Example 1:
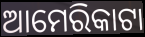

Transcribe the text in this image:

ଆମେରିକାଟା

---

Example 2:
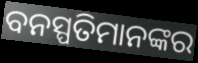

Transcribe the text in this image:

ବନସ୍ପତିମାନଙ୍କର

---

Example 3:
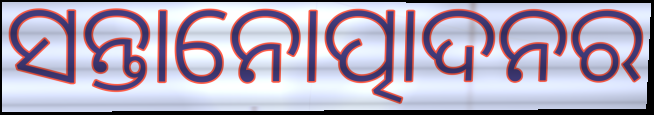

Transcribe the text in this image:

ସନ୍ତାନୋତ୍ପାଦନର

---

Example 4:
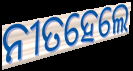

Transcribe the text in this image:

ନୀତହେଲେ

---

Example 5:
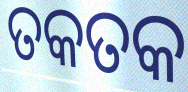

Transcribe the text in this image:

ତକତକ